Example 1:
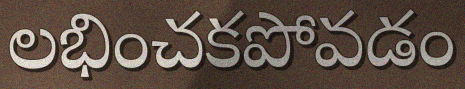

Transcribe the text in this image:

లభించకపోవడం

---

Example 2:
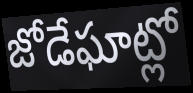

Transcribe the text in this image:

జోడేఘాట్లో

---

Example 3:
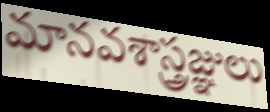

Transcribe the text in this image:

మానవశాస్త్రజ్ఞులు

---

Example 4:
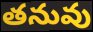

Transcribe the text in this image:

తనువు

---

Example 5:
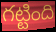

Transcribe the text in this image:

గట్టింది